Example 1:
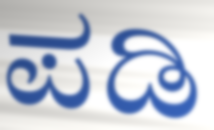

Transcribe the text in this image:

ಪಡಿ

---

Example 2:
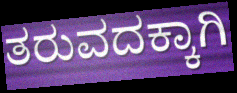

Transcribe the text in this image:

ತರುವದಕ್ಕಾಗಿ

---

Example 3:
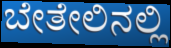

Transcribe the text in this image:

ಬೇತೇಲಿನಲ್ಲಿ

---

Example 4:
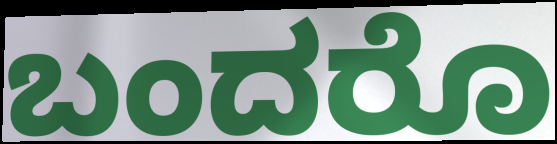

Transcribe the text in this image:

ಬಂದರೊ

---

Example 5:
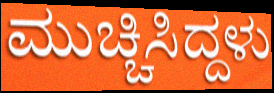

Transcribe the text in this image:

ಮುಚ್ಚಿಸಿದ್ದಳು